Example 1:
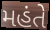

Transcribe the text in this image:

મહંતે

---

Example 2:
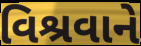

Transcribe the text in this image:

વિશ્રવાને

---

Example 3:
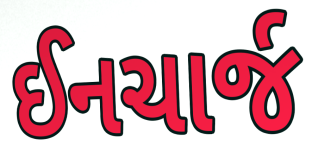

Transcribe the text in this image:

ઈનચાર્જ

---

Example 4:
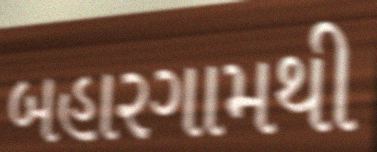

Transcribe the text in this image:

બહારગામથી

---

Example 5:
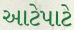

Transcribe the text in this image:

આટેપાટે